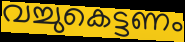
വച്ചുകെട്ടണം